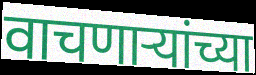
वाचणार्‍यांच्या